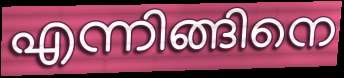
എന്നിങ്ങിനെ